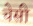
चेसी